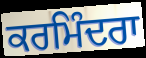
ਕਰਮਿੰਦਰਾ